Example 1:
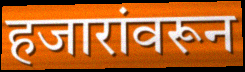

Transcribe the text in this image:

हजारांवरून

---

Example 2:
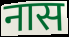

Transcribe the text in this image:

नास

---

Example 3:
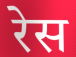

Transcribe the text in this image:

रेस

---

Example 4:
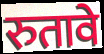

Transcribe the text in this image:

रुतावे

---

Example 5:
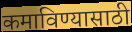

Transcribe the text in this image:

कमाविण्यासाठी